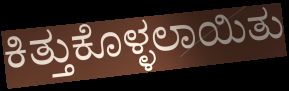
ಕಿತ್ತುಕೊಳ್ಳಲಾಯಿತು